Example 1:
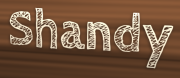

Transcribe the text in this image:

Shandy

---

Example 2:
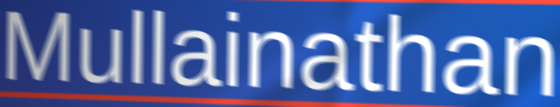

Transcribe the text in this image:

Mullainathan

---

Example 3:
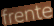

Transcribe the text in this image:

frente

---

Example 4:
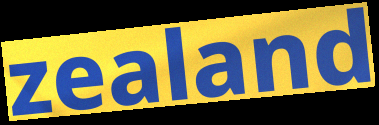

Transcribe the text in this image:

zealand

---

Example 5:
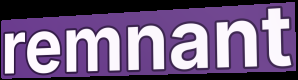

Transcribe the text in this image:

remnant